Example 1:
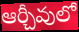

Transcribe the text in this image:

ఆర్చీవులో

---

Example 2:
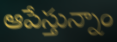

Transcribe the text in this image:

ఆపేస్తున్నాం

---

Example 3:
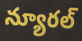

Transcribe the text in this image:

న్యూరల్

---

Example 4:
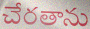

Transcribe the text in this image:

చేరతాను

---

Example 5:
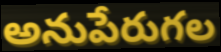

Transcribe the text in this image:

అనుపేరుగల